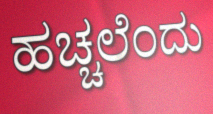
ಹಚ್ಚಲೆಂದು